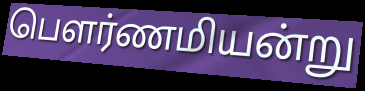
பெளர்ணமியன்று